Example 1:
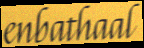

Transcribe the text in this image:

enbathaal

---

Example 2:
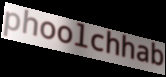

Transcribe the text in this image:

phoolchhab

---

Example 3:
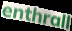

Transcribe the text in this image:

enthrall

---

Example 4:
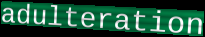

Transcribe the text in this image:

adulteration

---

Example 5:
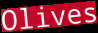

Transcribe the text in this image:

Olives